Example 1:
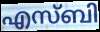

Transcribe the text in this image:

എസ്ബി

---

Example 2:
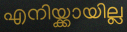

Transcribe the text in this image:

എനിയ്ക്കായില്ല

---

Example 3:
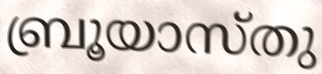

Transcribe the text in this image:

ബ്രൂയാസ്തു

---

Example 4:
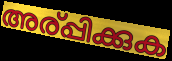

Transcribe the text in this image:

അര്പ്പിക്കുക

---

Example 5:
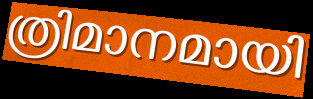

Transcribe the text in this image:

ത്രിമാനമായി